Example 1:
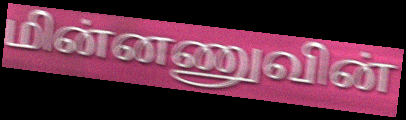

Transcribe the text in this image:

மின்னணுவின்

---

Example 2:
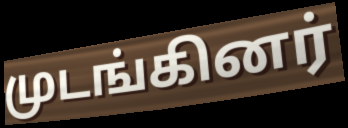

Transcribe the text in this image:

முடங்கினர்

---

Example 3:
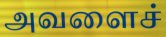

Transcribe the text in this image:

அவளைச்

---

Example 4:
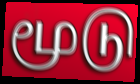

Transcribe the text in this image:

மூடு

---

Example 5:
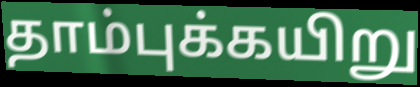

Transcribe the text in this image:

தாம்புக்கயிறு